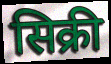
सिक्री